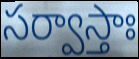
సర్వాస్తాః